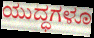
ಯುದ್ಧಗಳೂ